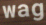
wag